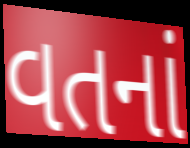
વતનાં